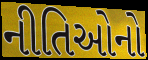
નીતિઓનો